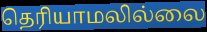
தெரியாமலில்லை